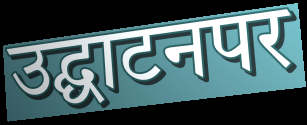
उद्घाटनपर